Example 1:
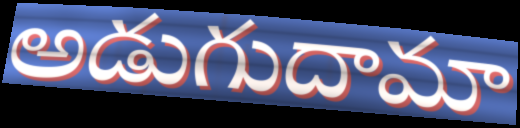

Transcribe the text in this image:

అడుగుదామా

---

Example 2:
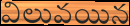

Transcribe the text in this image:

విలువయిన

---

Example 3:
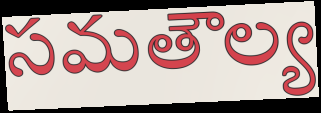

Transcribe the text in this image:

సమతౌల్య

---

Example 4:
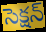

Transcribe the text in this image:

సెక్షన్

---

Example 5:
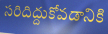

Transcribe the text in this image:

సరిదిద్దుకోవడానికి